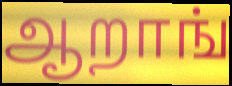
ஆறாங்